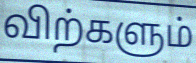
விற்களும்